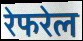
रेफरेल